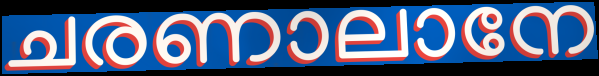
ചരണാലാനേ